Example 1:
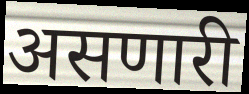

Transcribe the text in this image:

असणारी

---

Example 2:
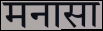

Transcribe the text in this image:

मनासा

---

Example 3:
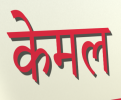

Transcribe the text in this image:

केमल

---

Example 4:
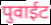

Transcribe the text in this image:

पुवाईट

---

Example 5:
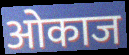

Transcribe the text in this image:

ओकाज